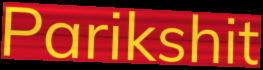
Parikshit